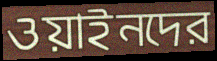
ওয়াইনদের